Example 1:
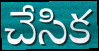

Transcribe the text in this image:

చేసిక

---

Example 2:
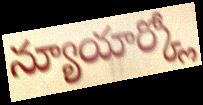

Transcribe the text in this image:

న్యూయార్క్లో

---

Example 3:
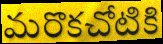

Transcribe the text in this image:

మరొకచోటికి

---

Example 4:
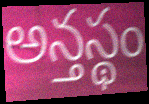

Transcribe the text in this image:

అన్తస్థం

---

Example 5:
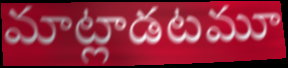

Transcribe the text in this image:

మాట్లాడటమూ